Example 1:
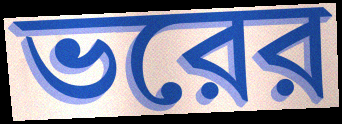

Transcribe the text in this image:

ভরের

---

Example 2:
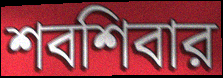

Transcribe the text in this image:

শবশিবার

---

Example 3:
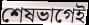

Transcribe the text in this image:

শেষভাগেই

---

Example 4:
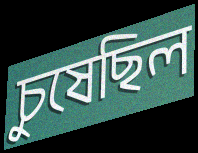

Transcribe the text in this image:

চুষেছিল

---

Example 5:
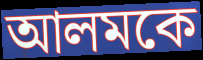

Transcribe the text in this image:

আলমকে